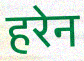
हरेन